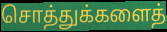
சொத்துக்களைத்